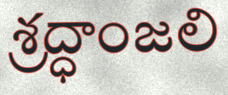
శ్రద్ధాంజలి